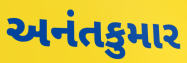
અનંતકુમાર